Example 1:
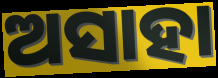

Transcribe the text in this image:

ଅସାହା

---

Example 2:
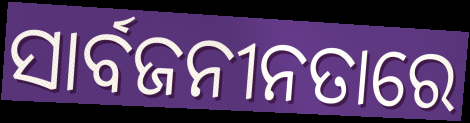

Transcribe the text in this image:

ସାର୍ବଜନୀନତାରେ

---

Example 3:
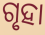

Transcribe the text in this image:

ଗୃହା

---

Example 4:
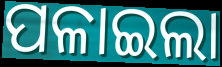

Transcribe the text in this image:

ପଳାଇଲା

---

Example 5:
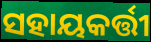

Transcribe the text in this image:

ସହାୟକର୍ତ୍ତୀ